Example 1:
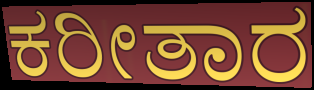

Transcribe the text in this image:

ಕರೀತಾರ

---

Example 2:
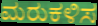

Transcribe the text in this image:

ಮರುಕಳಿಸ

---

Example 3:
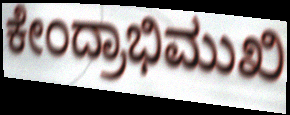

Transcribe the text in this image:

ಕೇಂದ್ರಾಭಿಮುಖಿ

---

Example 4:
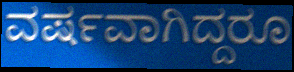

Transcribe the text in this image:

ವರ್ಷವಾಗಿದ್ದರೂ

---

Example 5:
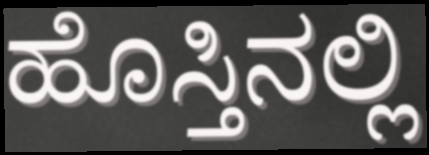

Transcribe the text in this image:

ಹೊಸ್ತಿನಲ್ಲಿ